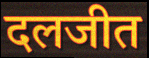
दलजीत